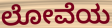
ಲೋವೆಯ